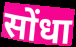
सोंधा